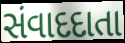
સંવાદદાતા